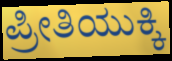
ಪ್ರೀತಿಯುಕ್ಕಿ